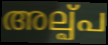
അല്പ്പ